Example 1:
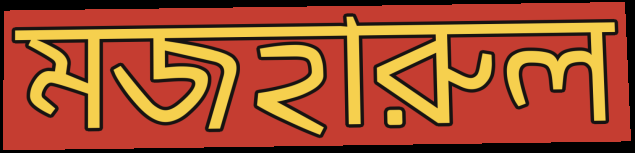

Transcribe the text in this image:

মজহাৰুল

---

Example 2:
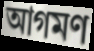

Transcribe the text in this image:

আগমণ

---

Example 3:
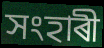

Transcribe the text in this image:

সংহাৰী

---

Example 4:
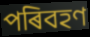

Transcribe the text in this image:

পৰিবহণ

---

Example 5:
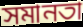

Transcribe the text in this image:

সমানতা